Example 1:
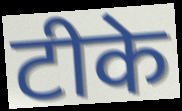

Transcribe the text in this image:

टीके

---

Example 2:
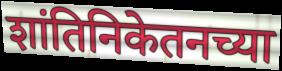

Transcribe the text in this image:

शांतिनिकेतनच्या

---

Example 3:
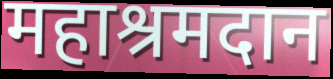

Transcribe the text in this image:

महाश्रमदान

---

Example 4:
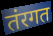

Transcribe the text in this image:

तंरगत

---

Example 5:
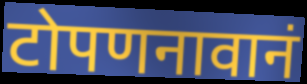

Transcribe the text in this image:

टोपणनावानं